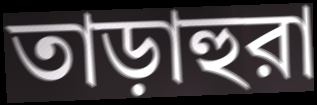
তাড়াহুরা